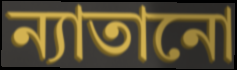
ন্যাতানো